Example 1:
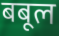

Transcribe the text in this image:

बबूल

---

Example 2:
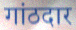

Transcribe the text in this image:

गांठदार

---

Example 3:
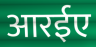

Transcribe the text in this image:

आरईए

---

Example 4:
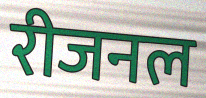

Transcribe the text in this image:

रीजनल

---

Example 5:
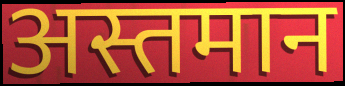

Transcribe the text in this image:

अस्तमान